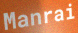
Manrai